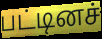
பட்டினச்